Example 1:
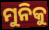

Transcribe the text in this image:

ମୁନିକୁ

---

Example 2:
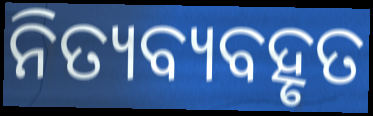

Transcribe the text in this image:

ନିତ୍ୟବ୍ୟବହୃତ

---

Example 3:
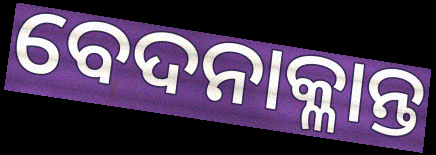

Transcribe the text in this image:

ବେଦନାକ୍ଳାନ୍ତ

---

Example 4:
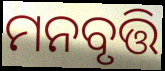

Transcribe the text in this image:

ମନବୃତ୍ତି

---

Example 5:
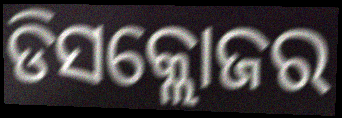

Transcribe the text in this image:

ଡିସକ୍ଲୋଜର